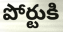
పోర్టుకి